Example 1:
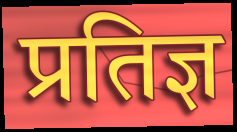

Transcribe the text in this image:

प्रतिज्ञ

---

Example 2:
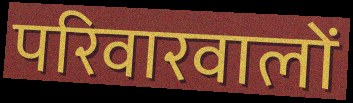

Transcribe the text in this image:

परिवारवालों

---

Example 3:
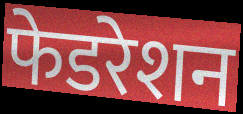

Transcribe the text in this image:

फेडरेशन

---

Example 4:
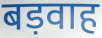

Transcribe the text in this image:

बड़वाह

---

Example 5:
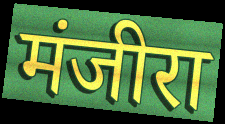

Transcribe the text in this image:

मंजीरा